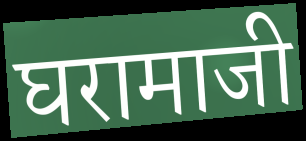
घरामाजी